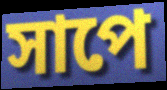
সাপে